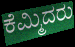
ಕೆಮ್ಮಿದರು